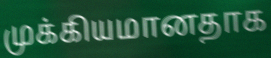
முக்கியமானதாக